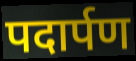
पदार्पण